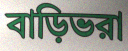
বাড়িভরা